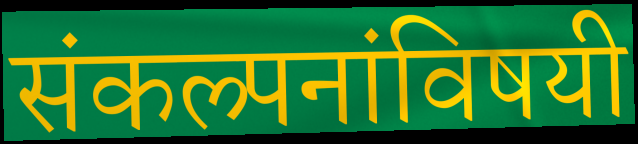
संकल्पनांविषयी